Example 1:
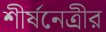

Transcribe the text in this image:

শীর্ষনেত্রীর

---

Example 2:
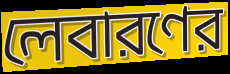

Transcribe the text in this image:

লেবারণের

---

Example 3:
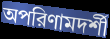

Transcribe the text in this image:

অপরিণামদর্শী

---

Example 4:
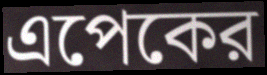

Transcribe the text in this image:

এপেকের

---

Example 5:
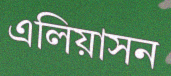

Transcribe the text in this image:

এলিয়াসন